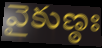
వైకుణ్ఠః